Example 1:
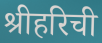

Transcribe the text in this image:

श्रीहरिची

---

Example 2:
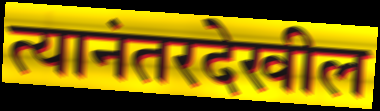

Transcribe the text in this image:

त्यानंतरदेखील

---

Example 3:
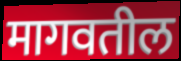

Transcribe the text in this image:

मागवतील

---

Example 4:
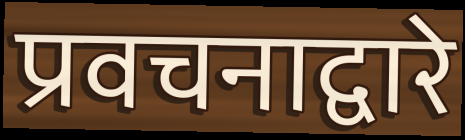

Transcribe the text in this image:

प्रवचनाद्वारे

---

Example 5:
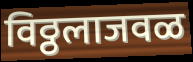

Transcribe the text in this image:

विठ्ठलाजवळ